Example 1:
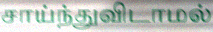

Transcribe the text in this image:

சாய்ந்துவிடாமல்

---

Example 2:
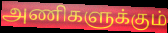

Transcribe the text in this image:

அணிகளுக்கும்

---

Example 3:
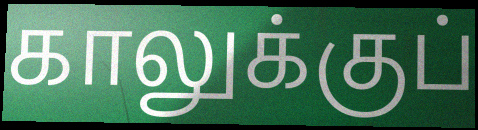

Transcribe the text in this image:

காலுக்குப்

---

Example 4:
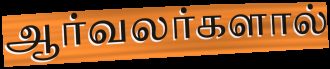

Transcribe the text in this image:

ஆர்வலர்களால்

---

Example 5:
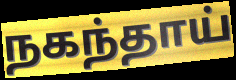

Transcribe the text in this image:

நகந்தாய்